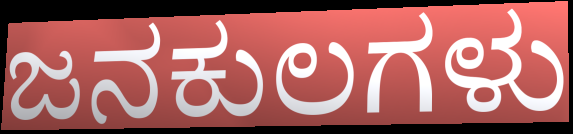
ಜನಕುಲಗಳು